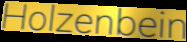
Holzenbein